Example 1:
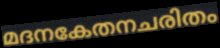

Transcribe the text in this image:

മദനകേതനചരിതം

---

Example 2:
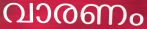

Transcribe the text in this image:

വാരണം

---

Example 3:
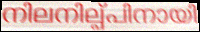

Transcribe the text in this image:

നിലനില്പ്പിനായി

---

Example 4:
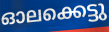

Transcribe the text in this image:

ഓലക്കെട്ടു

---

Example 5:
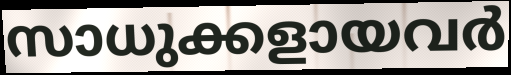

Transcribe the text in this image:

സാധുക്കളായവർ